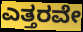
ಎತ್ತರವೇ